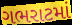
ગભરાટમાં